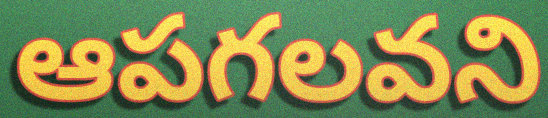
ఆపగలవని